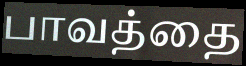
பாவத்தை